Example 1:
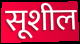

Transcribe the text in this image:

सूशील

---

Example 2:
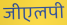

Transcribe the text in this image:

जीएलपी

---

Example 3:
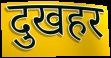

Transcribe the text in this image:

दुखहर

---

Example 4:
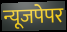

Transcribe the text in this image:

न्यूजपेपर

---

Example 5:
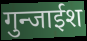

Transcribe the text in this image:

गुन्जाईश